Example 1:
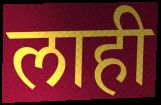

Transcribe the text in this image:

लाही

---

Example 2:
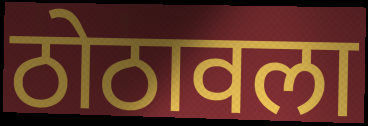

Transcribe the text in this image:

ठोठावला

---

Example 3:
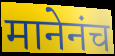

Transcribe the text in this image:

मानेनंच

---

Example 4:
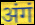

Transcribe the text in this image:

अंगं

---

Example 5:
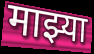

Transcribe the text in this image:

माझ्या